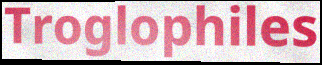
Troglophiles